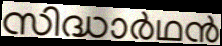
സിദ്ധാർഥൻ